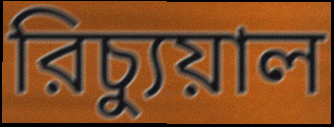
রিচ্যুয়াল